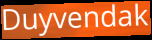
Duyvendak